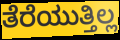
ತೆರೆಯುತ್ತಿಲ್ಲ